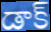
డాక్